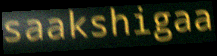
saakshigaa